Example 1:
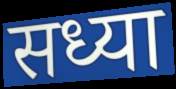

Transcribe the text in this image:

सध्या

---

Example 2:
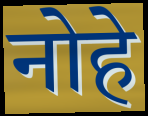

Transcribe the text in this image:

नोहे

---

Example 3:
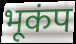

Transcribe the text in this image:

भूकंप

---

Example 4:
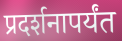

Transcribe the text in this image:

प्रदर्शनापर्यंत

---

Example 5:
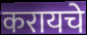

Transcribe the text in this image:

करायचे